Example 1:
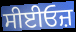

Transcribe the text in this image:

ਸੀਈਓਜ਼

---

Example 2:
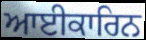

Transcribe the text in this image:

ਆਈਕਾਰਿਨ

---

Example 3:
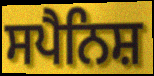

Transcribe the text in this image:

ਸਪੈਨਿਸ਼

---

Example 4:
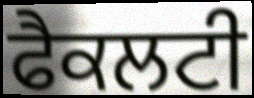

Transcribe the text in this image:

ਫੈਕਲਟੀ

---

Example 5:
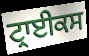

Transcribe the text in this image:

ਟ੍ਰਾਈਕਸ